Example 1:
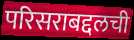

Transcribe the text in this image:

परिसराबद्दलची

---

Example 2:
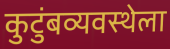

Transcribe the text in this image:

कुटुंबव्यवस्थेला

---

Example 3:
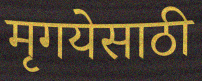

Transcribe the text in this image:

मृगयेसाठी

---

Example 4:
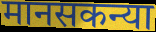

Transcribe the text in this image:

मानसकन्या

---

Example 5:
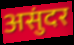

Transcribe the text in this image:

असुंदर